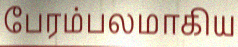
பேரம்பலமாகிய